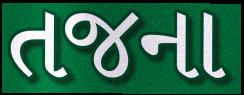
તજના